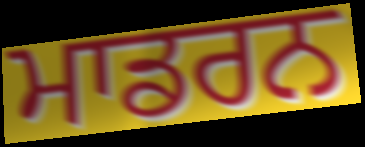
ਮਾਡਰਨ